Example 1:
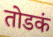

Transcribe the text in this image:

तोडकं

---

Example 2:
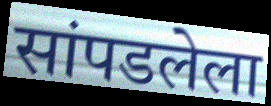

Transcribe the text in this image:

सांपडलेला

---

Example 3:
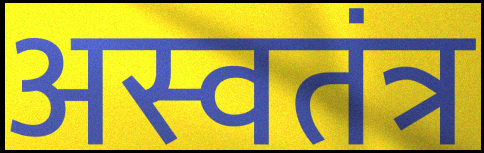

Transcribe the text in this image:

अस्वतंत्र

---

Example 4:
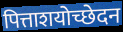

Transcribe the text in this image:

पित्ताशयोच्छेदन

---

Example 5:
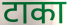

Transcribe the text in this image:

टाका